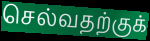
செல்வதற்குக்